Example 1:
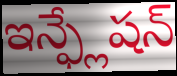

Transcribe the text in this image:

ఇన్ఫ్లేషన్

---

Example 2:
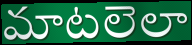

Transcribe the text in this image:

మాటలెలా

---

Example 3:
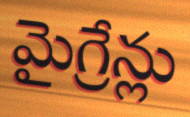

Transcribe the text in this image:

మైగ్రేన్లు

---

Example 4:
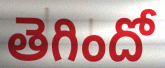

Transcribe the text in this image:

తెగిందో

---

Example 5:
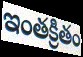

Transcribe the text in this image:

ఇంతక్రితం